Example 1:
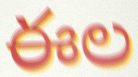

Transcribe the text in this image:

ఈల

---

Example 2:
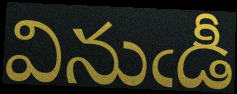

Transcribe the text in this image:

వినుఁడీ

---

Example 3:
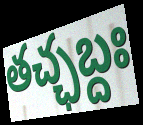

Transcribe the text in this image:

తచ్ఛబ్దః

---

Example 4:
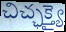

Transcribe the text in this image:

చిచ్ఛక్త్యై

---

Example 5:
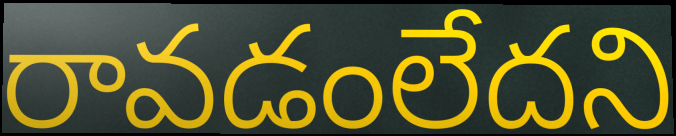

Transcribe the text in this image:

రావడంలేదని